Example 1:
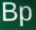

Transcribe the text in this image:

Bp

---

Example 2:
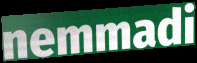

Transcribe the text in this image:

nemmadi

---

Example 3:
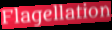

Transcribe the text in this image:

Flagellation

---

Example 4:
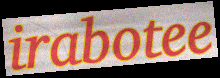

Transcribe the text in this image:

irabotee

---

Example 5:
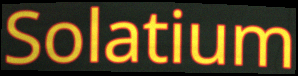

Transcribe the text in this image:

Solatium